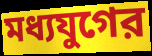
মধ্যযুগের